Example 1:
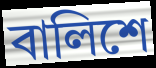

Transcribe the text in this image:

বালিশে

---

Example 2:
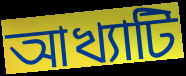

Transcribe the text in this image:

আখ্যাটি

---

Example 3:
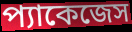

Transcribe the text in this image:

প্যাকেজেস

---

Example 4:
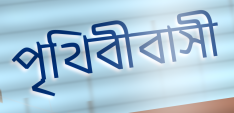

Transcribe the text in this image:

পৃথিবীবাসী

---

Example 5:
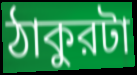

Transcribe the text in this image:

ঠাকুরটা